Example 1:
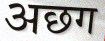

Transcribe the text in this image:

अछग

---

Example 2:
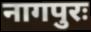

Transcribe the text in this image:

नागपुरः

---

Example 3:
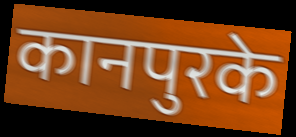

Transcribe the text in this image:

कानपुरके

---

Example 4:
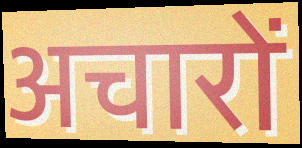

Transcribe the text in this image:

अचारों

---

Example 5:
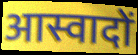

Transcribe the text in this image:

आस्वादों